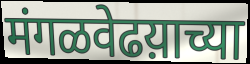
मंगळवेढय़ाच्या